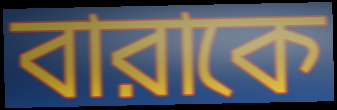
বারাকে